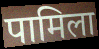
पामिला